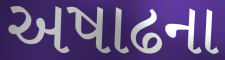
અષાઢના